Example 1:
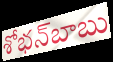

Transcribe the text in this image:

శోభన్‌బాబు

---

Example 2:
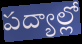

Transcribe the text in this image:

పద్యాల్లో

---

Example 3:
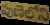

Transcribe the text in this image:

పుణెలోని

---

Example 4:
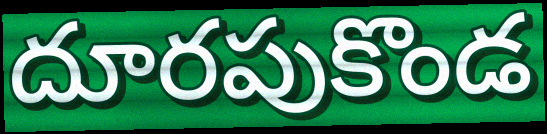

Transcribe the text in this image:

దూరపుకొండ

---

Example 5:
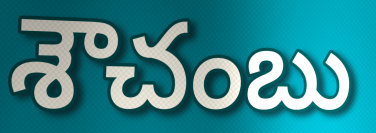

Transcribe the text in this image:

శౌచంబు